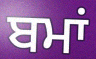
ਬਮਾਂ